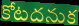
కోటదనుక